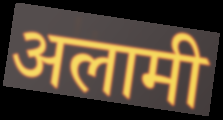
अलामी